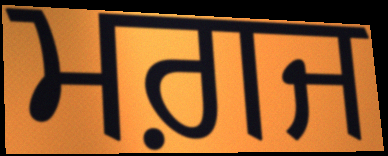
ਮਗ਼ਜ